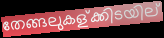
തേങ്ങലുകള്ക്കിടയില്